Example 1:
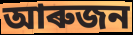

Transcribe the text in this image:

আৰুজন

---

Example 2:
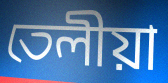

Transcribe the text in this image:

তেলীয়া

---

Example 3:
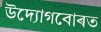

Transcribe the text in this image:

উদ্যোগবোৰত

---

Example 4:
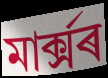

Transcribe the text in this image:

মাৰ্ক্সৰ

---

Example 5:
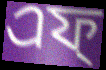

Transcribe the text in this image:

এফ্